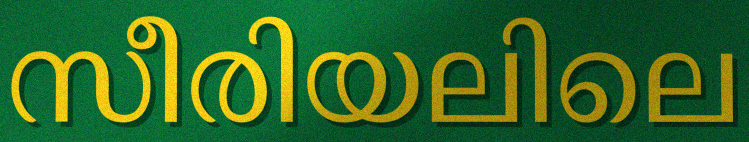
സീരിയലിലെ